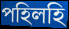
পহিলহি